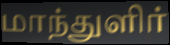
மாந்துளிர்